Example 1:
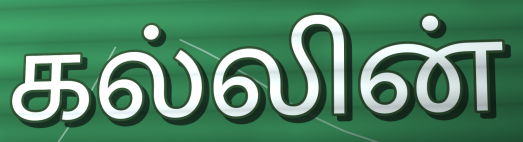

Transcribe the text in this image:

கல்லின்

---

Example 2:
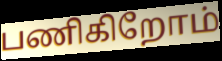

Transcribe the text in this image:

பணிகிறோம்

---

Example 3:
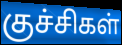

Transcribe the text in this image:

குச்சிகள்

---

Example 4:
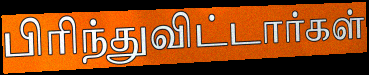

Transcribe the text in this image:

பிரிந்துவிட்டார்கள்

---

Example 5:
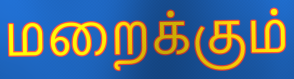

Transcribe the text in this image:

மறைக்கும்